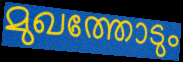
മുഖത്തോടും